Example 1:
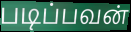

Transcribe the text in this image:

படிப்பவன்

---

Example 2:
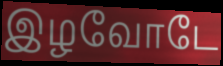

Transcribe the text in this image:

இழவோடே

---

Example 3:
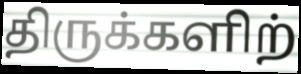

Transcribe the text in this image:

திருக்களிற்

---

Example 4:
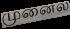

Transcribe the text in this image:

முனைல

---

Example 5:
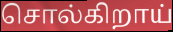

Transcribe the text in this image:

சொல்கிறாய்